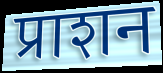
प्राशन